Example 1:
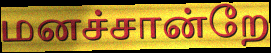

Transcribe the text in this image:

மனச்சான்றே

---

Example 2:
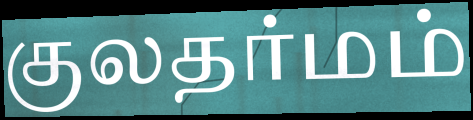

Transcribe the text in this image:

குலதர்மம்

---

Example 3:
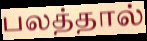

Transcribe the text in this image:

பலத்தால்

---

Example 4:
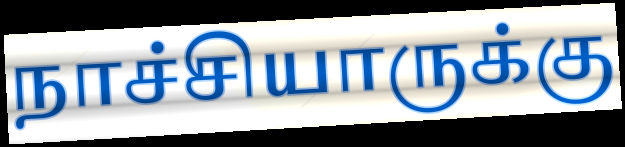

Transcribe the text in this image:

நாச்சியாருக்கு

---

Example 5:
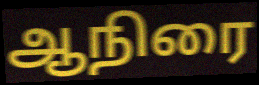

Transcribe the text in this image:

ஆநிரை